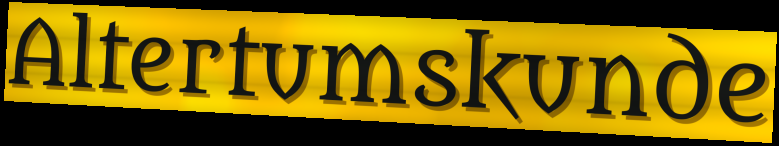
Altertumskunde